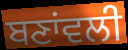
ਬਣਾਂਵਲੀ